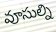
వూసుల్ని